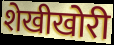
शेखीखोरी